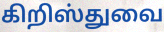
கிறிஸ்துவை